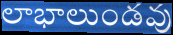
లాభాలుండవు